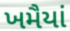
ખમૈયાં